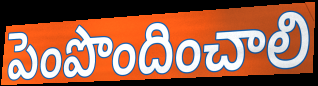
పెంపొందించాలి